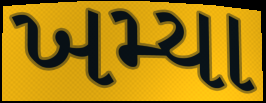
ખમ્યા